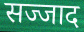
सज्जाद